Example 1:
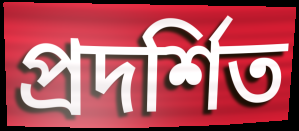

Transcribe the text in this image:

প্ৰদৰ্শিত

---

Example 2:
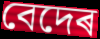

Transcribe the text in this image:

বেদেৰ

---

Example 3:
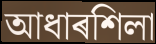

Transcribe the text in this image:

আধাৰশিলা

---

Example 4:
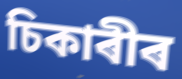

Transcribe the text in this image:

চিকাৰীৰ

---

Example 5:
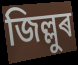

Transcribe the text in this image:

জিল্লুৰ